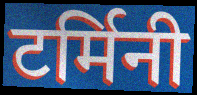
टर्मिनी